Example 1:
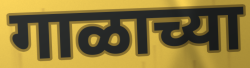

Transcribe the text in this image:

गाळाच्या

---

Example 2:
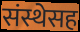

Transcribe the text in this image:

संस्थेसह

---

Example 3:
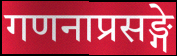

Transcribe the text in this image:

गणनाप्रसङ्गे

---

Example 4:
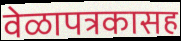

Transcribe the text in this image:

वेळापत्रकासह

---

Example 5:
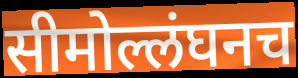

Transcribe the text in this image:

सीमोल्लंघनच